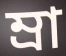
ম্রা